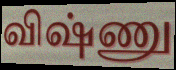
விஷ்ணு